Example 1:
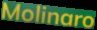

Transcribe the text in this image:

Molinaro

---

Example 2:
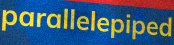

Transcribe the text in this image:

parallelepiped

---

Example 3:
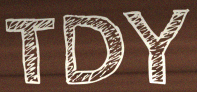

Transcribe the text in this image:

TDY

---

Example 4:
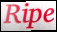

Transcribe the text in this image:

Ripe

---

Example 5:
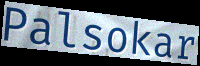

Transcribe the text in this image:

Palsokar